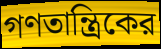
গণতান্ত্রিকের